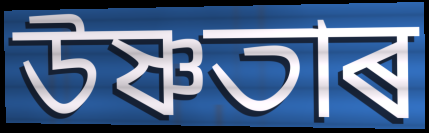
উষ্ণতাৰ